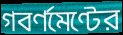
গবর্ণমেণ্টের